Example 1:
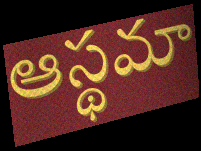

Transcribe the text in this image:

ఆస్థమా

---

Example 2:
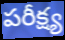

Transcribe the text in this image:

పరీక్ష్య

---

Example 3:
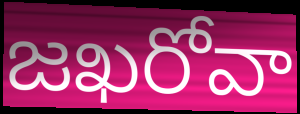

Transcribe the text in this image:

జఖరోవా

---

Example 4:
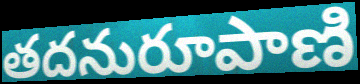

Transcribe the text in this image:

తదనురూపాణి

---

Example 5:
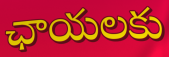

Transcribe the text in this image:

ఛాయలకు